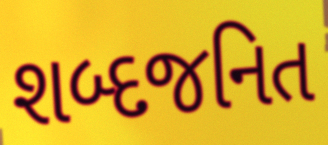
શબ્દજનિત